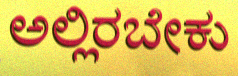
ಅಲ್ಲಿರಬೇಕು